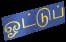
ஓட்டுப்